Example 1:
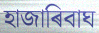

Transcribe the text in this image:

হাজাৰিবাঘ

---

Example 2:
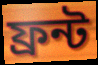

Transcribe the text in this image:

ফ্ৰন্ট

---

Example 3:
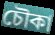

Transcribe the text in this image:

চৌকা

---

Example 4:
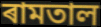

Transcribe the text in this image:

ৰামতাল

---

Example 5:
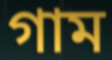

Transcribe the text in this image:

গাম